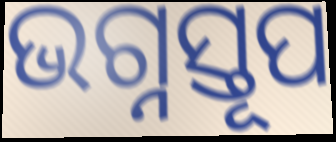
ଭଗ୍ନସ୍ତୂପ